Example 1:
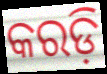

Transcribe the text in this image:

କରଡ଼ି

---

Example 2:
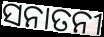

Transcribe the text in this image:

ସନାତନୀ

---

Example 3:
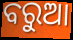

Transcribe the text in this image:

ବରୁଆ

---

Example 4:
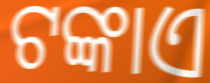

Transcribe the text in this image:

ଟଙ୍କାଏ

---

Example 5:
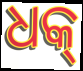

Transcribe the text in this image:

ଧକ୍